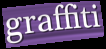
graffiti